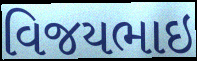
વિજયભાઇ